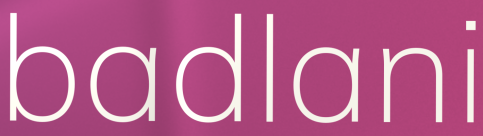
badlani